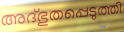
അദ്ഭുതപ്പെടുത്തി